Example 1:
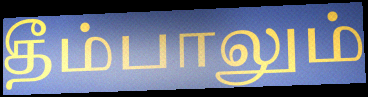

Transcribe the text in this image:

தீம்பாலும்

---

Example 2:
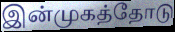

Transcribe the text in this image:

இன்முகத்தோடு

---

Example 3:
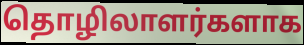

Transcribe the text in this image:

தொழிலாளர்களாக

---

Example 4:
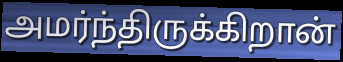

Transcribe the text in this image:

அமர்ந்திருக்கிறான்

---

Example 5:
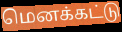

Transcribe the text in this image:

மெனக்கட்டு